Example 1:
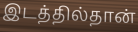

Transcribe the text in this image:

இடத்தில்தான்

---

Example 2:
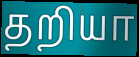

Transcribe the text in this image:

தறியா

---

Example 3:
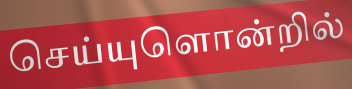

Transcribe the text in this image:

செய்யுளொன்றில்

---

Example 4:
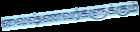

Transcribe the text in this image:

வைஷ்ணவர்களுக்கும்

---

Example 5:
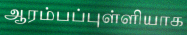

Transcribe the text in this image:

ஆரம்பப்புள்ளியாக